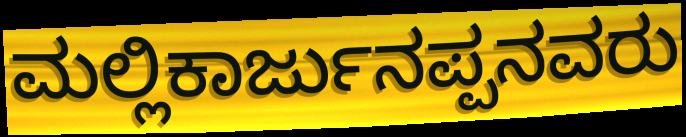
ಮಲ್ಲಿಕಾರ್ಜುನಪ್ಪನವರು